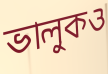
ভালুকও